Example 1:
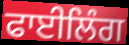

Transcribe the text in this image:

ਫਾਈਲਿੰਗ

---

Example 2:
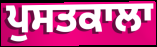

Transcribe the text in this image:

ਪੁਸਤਕਾਲਾ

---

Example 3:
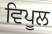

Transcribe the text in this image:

ਵਿਪੂਲ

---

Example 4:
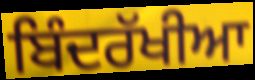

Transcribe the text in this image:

ਬਿੰਦਰੱਖੀਆ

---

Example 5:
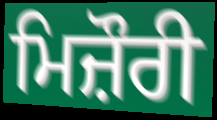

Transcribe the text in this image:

ਮਿਜ਼ੌਰੀ